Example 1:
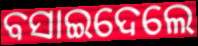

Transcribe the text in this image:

ବସାଇଦେଲେ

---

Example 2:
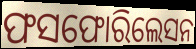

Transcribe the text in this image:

ଫସଫୋରିଲେସନ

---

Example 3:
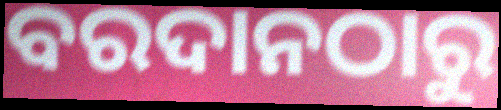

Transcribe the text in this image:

ବରଦାନଠାରୁ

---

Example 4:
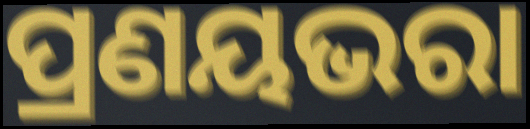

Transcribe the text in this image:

ପ୍ରଣୟଭରା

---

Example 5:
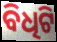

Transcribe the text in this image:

ବିଧିଟି